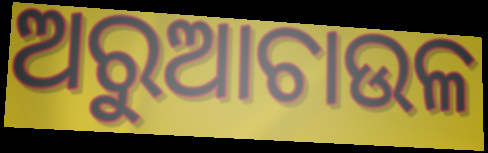
ଅରୁଆଚାଉଳ